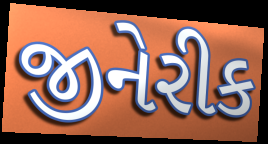
જીનેરીક